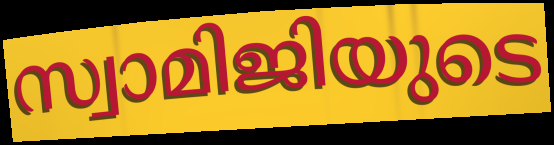
സ്വാമിജിയുടെ